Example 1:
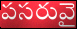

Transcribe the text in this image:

పసరువై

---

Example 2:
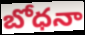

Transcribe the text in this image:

బోధనా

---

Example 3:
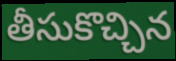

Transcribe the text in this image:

తీసుకొచ్చిన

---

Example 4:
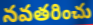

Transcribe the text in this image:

నవతరించు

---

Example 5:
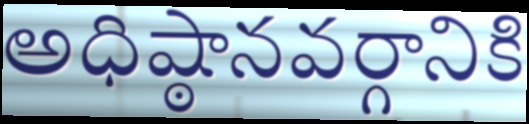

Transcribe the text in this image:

అధిష్ఠానవర్గానికి